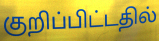
குறிப்பிட்டதில்